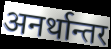
अनर्थान्तर